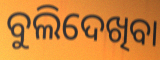
ବୁଲିଦେଖିବା